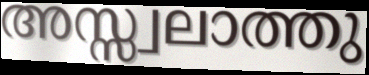
അസ്സ്വലാത്തു